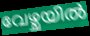
വേഴ്ചയിൽ